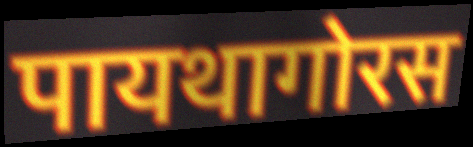
पायथागोरस